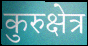
कुरुक्षेत्र